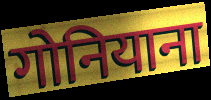
गोनियाना